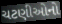
ચટણીઓનો